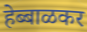
हेब्बाळकर